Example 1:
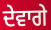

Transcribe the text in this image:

ਦੇਵਾਗੇ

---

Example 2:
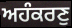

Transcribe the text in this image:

ਅਹੰਕਰਣੁ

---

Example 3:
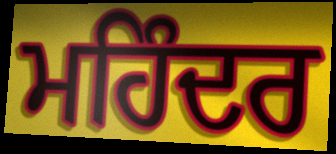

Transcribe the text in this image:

ਮਹਿੰਦਰ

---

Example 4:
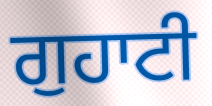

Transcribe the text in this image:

ਗੁਹਾਟੀ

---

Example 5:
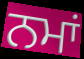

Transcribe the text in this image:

ਨਮਾਂ